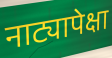
नाट्यापेक्षा